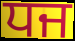
ਧਜ